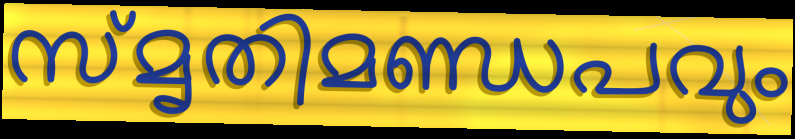
സ്മൃതിമണ്ഡപവും